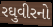
રઘુવીરનો